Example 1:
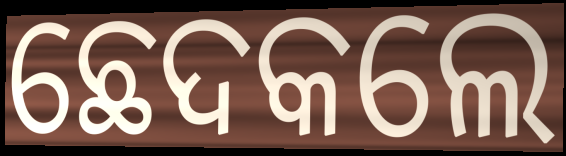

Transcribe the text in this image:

ଛେଦକଲେ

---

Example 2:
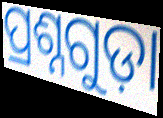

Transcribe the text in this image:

ପ୍ରଶ୍ନଗୁଡ଼ା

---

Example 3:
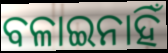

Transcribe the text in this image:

ବଳାଇନାହିଁ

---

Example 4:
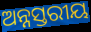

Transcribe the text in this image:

ଅନ୍ନସ୍ତରୀୟ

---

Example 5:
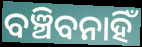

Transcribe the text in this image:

ବଞ୍ଚିବନାହିଁ